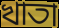
খাতা